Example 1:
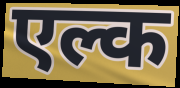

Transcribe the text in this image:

एल्क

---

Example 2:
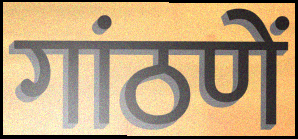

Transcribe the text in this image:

गांठणें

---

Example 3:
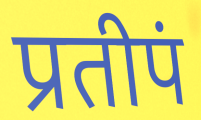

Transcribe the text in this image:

प्रतीपं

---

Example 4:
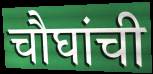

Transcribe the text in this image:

चौघांची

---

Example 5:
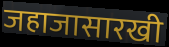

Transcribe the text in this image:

जहाजासारखी